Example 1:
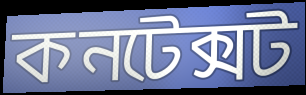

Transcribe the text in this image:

কনটেক্সট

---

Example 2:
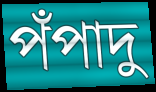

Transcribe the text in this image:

পঁপাদু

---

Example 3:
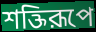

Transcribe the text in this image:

শক্তিরূপে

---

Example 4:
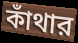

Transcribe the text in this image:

কাঁথার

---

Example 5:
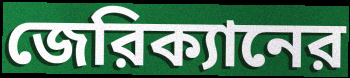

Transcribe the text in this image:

জেরিক্যানের